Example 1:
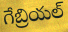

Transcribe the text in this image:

గేబ్రియల్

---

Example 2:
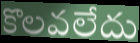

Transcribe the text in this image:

కొలవలేదు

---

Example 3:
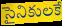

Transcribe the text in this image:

సైనికులకే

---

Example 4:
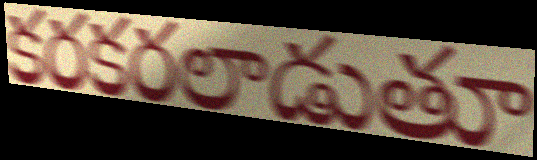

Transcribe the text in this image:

కరకరలాడుతూ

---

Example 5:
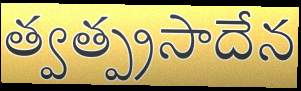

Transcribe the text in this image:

త్వత్ప్రసాదేన